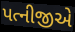
પત્નીજીએ